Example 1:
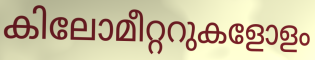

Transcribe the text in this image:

കിലോമീറ്ററുകളോളം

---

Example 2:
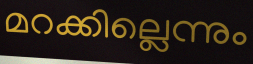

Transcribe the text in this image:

മറക്കില്ലെന്നും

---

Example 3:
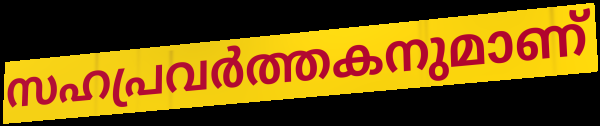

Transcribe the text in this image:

സഹപ്രവർത്തകനുമാണ്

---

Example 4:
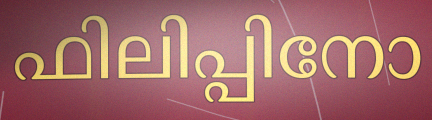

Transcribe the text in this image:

ഫിലിപ്പിനോ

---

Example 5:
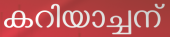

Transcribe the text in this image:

കറിയാച്ചന്